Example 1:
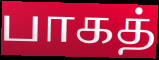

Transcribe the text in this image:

பாகத்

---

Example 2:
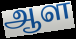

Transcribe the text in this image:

ஆள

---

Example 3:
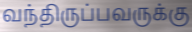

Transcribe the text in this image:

வந்திருப்பவருக்கு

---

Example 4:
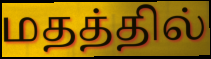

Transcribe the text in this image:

மதத்தில்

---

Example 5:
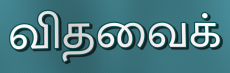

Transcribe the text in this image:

விதவைக்